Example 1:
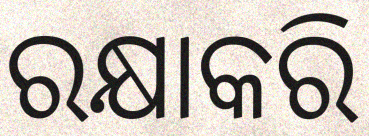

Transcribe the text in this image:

ରକ୍ଷାକରି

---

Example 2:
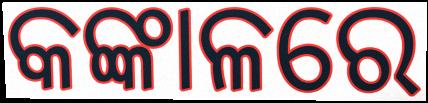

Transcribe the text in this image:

କଙ୍କାଳରେ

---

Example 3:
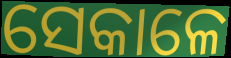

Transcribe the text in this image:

ସେକାଳେ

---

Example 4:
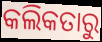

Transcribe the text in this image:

କଲିକତାରୁ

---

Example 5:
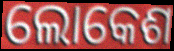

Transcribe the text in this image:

ଲୋକେଶ